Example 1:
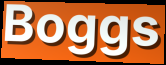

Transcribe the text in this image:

Boggs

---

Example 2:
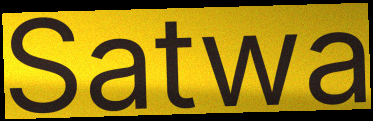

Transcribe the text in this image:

Satwa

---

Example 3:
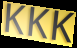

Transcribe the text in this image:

KKK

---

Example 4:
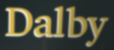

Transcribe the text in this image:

Dalby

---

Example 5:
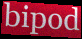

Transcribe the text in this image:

bipod